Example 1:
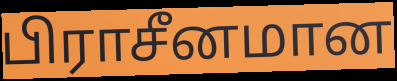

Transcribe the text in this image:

பிராசீனமான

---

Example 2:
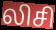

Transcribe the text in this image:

லிசி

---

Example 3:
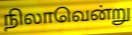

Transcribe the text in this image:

நிலாவென்று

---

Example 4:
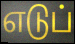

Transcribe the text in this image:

எடுப்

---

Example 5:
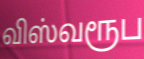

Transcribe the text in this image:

விஸ்வரூப